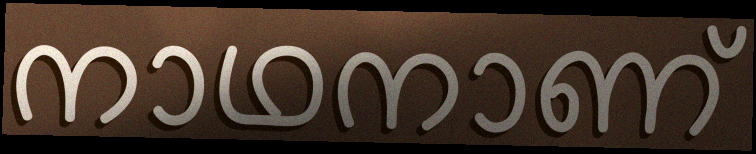
നാഥനാണ്